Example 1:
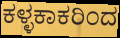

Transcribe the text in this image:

ಕಳ್ಳಕಾಕರಿಂದ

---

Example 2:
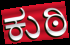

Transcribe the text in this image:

ಕುಠಿ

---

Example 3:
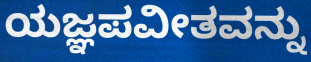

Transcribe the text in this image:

ಯಜ್ಞಪವೀತವನ್ನು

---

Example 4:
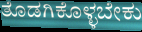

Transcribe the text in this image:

ತೊಡಗಿಕೊಳ್ಳಬೇಕು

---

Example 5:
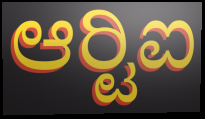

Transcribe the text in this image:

ಆರ್‍ಟಿಐ